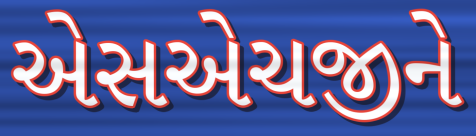
એસએચજીને